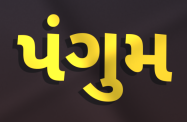
પંગુમ